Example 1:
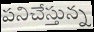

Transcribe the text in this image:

పనిచేస్తున్న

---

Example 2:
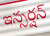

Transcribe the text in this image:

ఇన్సర్షన్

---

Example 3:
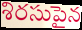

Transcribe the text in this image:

శిరసుపైన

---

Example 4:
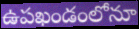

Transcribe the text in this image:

ఉపఖండంలోనూ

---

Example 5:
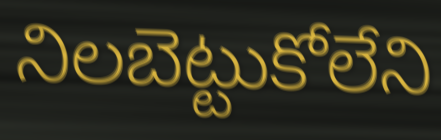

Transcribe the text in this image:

నిలబెట్టుకోలేని